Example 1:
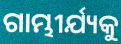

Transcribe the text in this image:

ଗାମ୍ଭୀର୍ଯ୍ୟକୁ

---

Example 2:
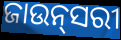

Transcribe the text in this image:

ଜାଉନ୍‌ସରୀ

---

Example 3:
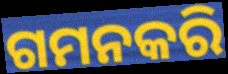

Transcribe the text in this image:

ଗମନକରି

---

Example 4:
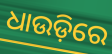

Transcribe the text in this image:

ଧାଉଡ଼ିରେ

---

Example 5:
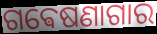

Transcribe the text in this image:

ଗଵେଷଣାଗାର